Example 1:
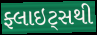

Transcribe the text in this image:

ફ્લાઇટ્સથી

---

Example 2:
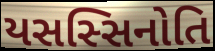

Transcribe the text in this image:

યસસ્સિનોતિ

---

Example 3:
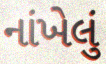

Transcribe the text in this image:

નાંખેલું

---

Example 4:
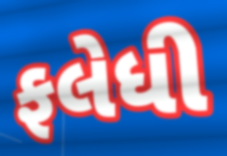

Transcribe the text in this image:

ફલેધી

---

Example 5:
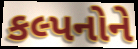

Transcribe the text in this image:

કલ્પનોને